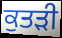
ਕੁਤੜੀ